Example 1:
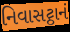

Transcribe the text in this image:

નિવાસટ્ઠાનં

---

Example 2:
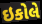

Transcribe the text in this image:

ઇકોલે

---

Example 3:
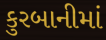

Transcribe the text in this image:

કુરબાનીમાં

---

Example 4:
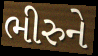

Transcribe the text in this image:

ભીરુને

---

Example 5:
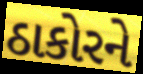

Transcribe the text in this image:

ઠાકોરને